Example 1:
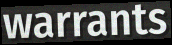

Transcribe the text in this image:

warrants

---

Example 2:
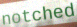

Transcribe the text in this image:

notched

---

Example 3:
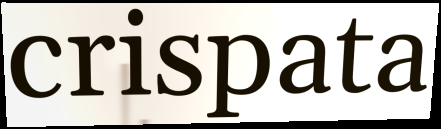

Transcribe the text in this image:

crispata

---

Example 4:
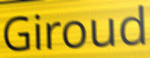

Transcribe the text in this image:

Giroud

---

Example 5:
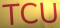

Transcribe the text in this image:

TCU